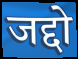
जद्दो